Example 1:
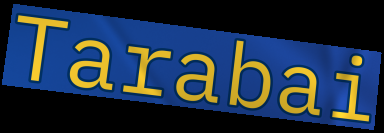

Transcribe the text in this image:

Tarabai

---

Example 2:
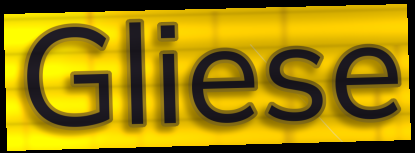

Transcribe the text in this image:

Gliese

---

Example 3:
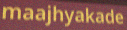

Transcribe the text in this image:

maajhyakade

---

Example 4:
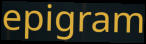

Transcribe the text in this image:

epigram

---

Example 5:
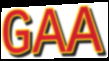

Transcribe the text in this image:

GAA